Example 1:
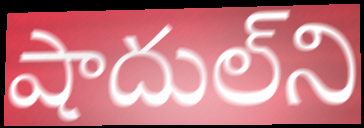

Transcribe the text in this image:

షాదుల్‌ని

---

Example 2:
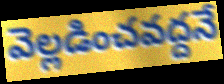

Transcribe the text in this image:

వెల్లడించవద్దనే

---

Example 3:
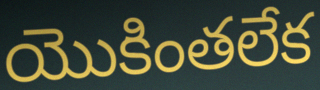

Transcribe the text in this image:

యొకింతలేక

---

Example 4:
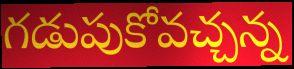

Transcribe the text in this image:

గడుపుకోవచ్చన్న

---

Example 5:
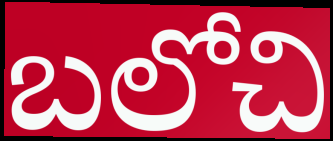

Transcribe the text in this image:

బలోచి